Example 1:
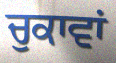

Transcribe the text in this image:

ਚੁਕਾਵਾਂ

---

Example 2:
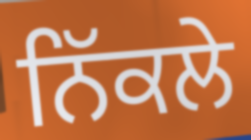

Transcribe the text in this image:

ਨਿੱਕਲੇ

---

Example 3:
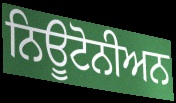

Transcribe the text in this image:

ਨਿਊਟੋਨੀਅਨ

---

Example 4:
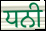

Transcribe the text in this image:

ਧਨੀ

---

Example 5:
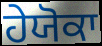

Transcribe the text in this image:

ਹੇਯੋਕਾ